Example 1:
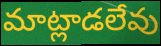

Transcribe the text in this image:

మాట్లాడలేవు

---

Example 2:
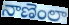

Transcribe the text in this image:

నాణెంలా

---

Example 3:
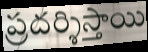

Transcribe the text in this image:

ప్రదర్శిస్తాయి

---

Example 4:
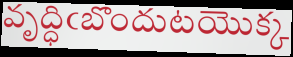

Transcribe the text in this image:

వృద్ధిఁబొందుటయొక్క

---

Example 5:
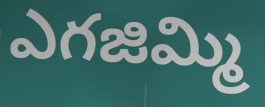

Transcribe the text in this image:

ఎగజిమ్మి